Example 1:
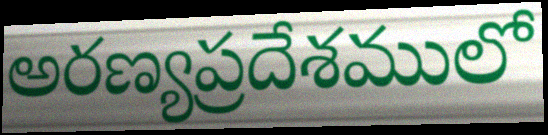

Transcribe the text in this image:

అరణ్యప్రదేశములో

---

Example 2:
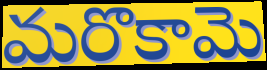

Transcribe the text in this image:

మరొకామె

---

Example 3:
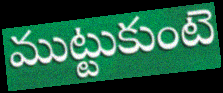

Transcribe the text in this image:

ముట్టుకుంటె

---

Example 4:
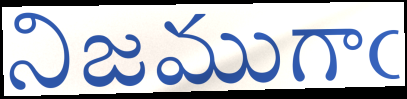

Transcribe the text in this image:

నిజముగాఁ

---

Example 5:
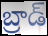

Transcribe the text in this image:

బ్రాడ్